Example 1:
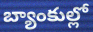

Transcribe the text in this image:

బ్యాంకుల్లో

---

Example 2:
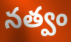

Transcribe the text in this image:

నత్వం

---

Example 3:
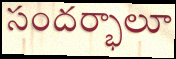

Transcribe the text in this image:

సందర్భాలూ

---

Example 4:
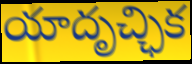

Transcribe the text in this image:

యాదృచ్ఛిక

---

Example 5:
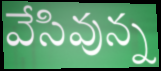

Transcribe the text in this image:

వేసివున్న